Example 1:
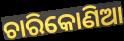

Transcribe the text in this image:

ଚାରିକୋଣିଆ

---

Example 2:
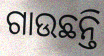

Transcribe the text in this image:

ଗାଉଛନ୍ତି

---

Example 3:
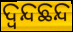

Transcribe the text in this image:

ଦ୍ୱନ୍ଦଛନ୍ଦ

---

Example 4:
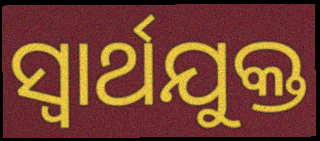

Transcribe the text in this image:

ସ୍ୱାର୍ଥଯୁକ୍ତ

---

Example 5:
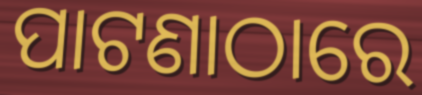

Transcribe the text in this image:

ପାଟଣାଠାରେ